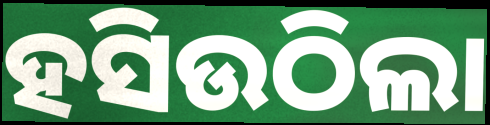
ହସିଉଠିଲା